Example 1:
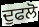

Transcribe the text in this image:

ਦੁਫਲੋ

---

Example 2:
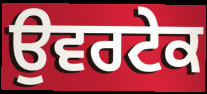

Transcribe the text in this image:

ਉਵਰਟੇਕ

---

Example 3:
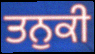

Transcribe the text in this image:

ਤਨੁਕੀ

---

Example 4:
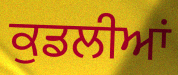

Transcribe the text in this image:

ਕੁਡਲੀਆਂ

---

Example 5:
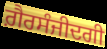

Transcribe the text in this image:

ਗ਼ੈਰਸੰਜੀਦਗੀ